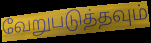
வேறுபடுத்தவும்